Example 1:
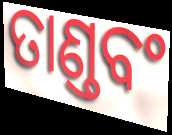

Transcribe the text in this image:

ତାଣ୍ଡବଂ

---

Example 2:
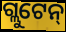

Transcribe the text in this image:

ଗ୍ଲୁଟେନ୍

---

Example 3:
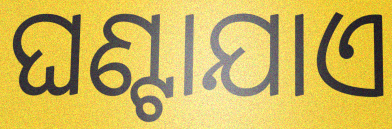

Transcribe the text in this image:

ଘଣ୍ଟାଯାଏ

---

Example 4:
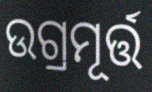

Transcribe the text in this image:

ଉଗ୍ରମୂର୍ତ୍ତ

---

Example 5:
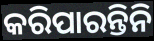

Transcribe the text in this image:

କରିପାରନ୍ତିନି